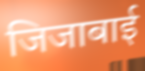
जिजाबाई